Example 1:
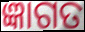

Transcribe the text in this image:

ଜ୍ଞାଗତ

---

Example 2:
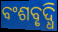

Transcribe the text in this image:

ବଂଶବୃଦ୍ଧି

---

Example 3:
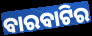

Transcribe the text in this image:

ବାରବାଟିର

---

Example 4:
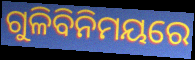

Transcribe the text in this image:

ଗୁଳିବିନିମୟରେ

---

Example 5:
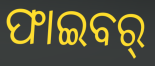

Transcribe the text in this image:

ଫାଇବର୍